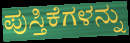
ಪುಸ್ತಿಕೆಗಳನ್ನು